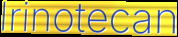
Irinotecan